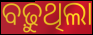
ବଢ଼ୁଥିଲା